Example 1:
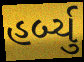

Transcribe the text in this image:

હર્બ્યુ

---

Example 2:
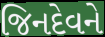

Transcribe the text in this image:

જિનદેવને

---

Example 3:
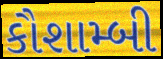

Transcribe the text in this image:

કૌશામ્બી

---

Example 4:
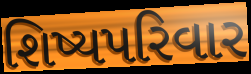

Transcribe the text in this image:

શિષ્યપરિવાર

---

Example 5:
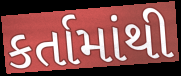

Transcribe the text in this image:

કર્તામાંથી